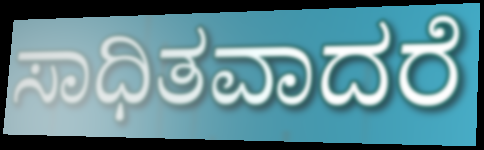
ಸಾಧಿತವಾದರೆ